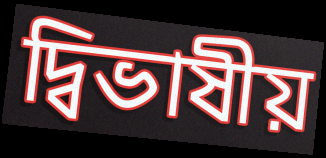
দ্বিভাষীয়